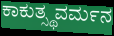
ಕಾಕುತ್ಸ್ಥವರ್ಮನ